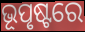
ଭୂପୃଷ୍ଟରେ